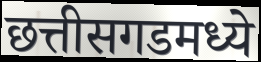
छत्तीसगडमध्ये